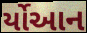
ર્યોઆન